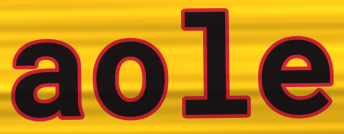
aole